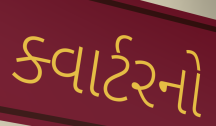
ક્વાર્ટરનો